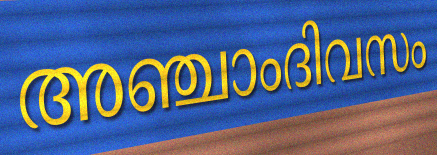
അഞ്ചാംദിവസം